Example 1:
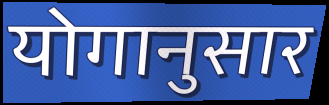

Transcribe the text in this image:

योगानुसार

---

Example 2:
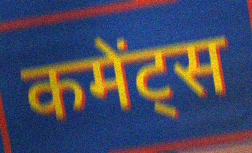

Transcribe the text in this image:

कमेंट्स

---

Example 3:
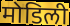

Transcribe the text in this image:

मोडिली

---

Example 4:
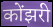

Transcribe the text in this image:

कोंझरी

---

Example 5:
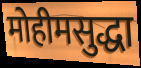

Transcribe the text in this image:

मोहीमसुद्धा